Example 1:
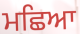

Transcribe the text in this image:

ਮਛਿਆ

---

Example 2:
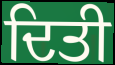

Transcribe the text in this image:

ਦਿਤੀ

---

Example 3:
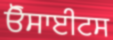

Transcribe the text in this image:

ਓੋਸਾਈਟਸ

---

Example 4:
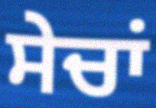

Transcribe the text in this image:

ਸੇਚਾਂ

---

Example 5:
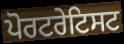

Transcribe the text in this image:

ਪੋਰਟਰੇਟਿਸਟ